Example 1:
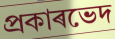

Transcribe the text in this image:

প্ৰকাৰভেদ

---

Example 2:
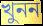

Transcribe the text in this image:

খুনন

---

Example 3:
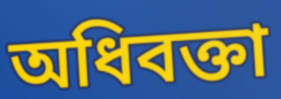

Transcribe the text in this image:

অধিবক্তা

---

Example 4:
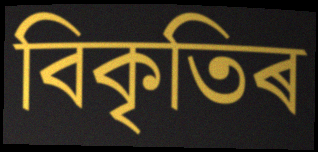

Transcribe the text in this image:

বিকৃতিৰ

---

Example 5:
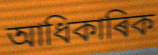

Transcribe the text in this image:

আধিকাৰিক